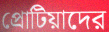
প্রোটিয়াদের